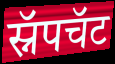
स्नॅपचॅट